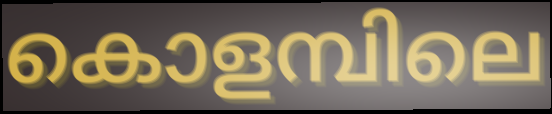
കൊളമ്പിലെ